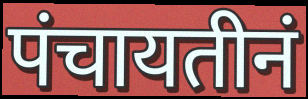
पंचायतीनं